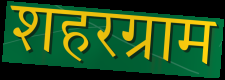
शहरग्राम